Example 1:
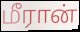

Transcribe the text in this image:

மீரான்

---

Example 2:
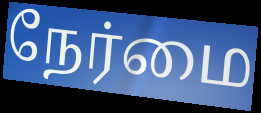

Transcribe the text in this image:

நேர்மை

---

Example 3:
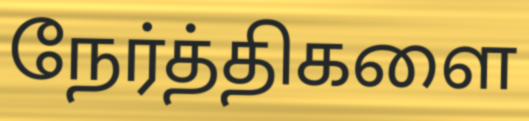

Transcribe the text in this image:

நேர்த்திகளை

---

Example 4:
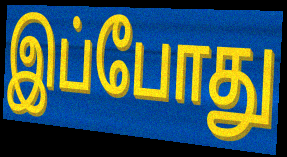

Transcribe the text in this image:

இப்போது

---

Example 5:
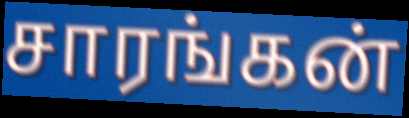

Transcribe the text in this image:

சாரங்கன்